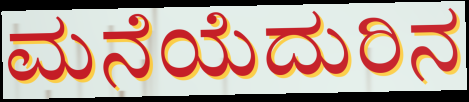
ಮನೆಯೆದುರಿನ